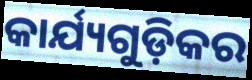
କାର୍ଯ୍ୟଗୁଡ଼ିକର